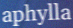
aphylla